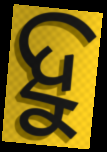
ହୁ